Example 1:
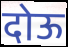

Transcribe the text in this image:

दोऊ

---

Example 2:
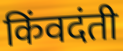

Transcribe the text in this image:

किंवदंती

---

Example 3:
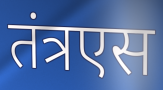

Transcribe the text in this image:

तंत्रएस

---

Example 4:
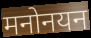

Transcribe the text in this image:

मनोनयन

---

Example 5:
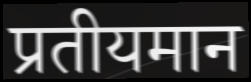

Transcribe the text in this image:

प्रतीयमान